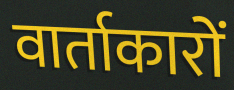
वार्ताकारों